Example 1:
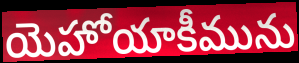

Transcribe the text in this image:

యెహోయాకీమును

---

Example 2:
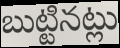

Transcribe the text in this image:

బుట్టినట్లు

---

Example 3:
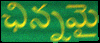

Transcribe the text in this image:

ఛిన్నమై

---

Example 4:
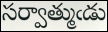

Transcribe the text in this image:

సర్వాత్ముఁడు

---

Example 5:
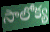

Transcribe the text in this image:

సాలోక్య